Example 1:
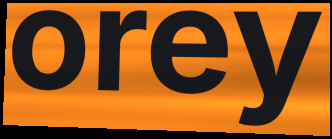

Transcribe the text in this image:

orey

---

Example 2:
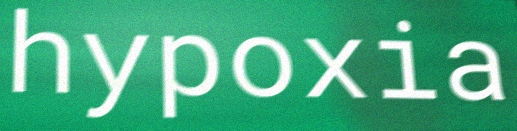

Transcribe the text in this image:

hypoxia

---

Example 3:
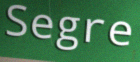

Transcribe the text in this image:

Segre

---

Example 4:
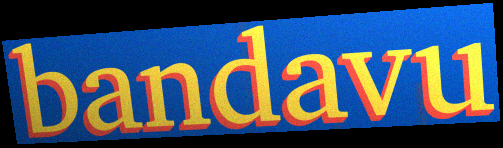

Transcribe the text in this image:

bandavu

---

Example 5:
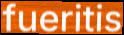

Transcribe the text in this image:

fueritis